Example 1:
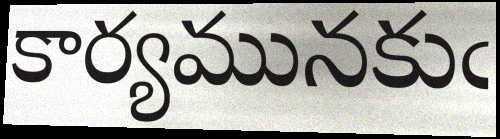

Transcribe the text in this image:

కార్యమునకుఁ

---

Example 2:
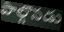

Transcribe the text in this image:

పాల్గొనడు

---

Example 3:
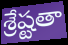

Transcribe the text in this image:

శ్రేష్టతా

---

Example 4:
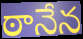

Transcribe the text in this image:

ఠానేన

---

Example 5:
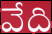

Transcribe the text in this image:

వేది